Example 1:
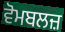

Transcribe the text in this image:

ਵੋਮਬਲਜ਼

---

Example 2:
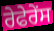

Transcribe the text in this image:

ਰੇਫੇਰੇਂਸ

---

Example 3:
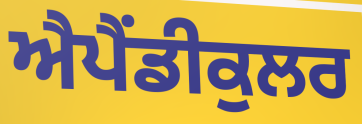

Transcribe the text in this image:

ਐਪੈਂਡੀਕੁਲਰ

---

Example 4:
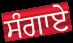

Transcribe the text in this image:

ਸੰਗਾਏ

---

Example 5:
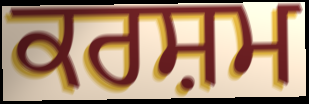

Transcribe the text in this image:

ਕਰਸ਼ਮ